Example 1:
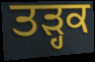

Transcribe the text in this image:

ਤੜ੍ਹਕ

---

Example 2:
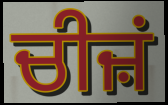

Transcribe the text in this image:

ਚੀਜ਼ਂ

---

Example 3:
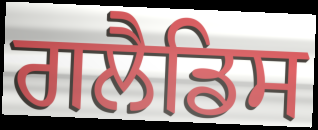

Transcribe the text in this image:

ਗਲੈਡਿਸ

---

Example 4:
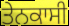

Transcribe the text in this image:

ਤੇਨਕਾਸੀ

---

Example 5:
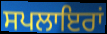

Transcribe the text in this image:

ਸਪਲਾਇਰਾਂ